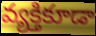
వ్యక్తికూడా